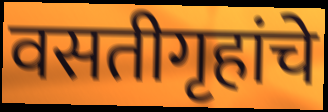
वसतीगृहांचे